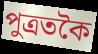
পুত্ৰতকৈ